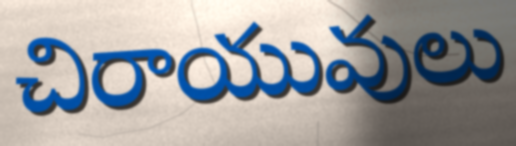
చిరాయువులు